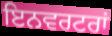
ਇਨਵਰਟਰਾਂ